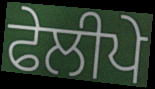
ਫੇਲੀਪੇ